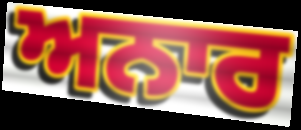
ਅਨਾਰ